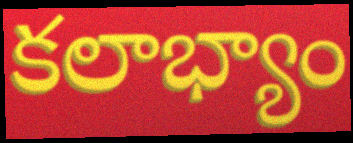
కలాభ్యాం